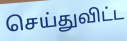
செய்துவிட்ட